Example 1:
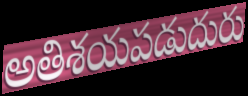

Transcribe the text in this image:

అతిశయపడుదురు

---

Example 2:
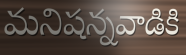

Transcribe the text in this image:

మనిషన్నవాడికి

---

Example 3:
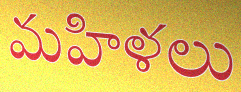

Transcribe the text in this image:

మహిళలు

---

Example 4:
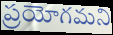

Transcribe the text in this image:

ప్రయోగమని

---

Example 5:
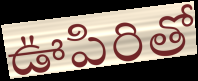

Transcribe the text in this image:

ఊపిరితో